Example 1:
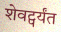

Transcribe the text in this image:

शेवट्पर्यंत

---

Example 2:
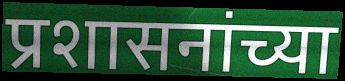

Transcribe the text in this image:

प्रशासनांच्या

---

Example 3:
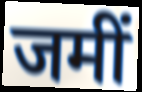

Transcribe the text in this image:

जमीं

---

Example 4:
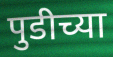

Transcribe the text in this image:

पुडीच्या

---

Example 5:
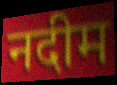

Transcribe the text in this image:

नदीम